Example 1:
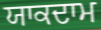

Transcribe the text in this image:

ਯਾਕਦਾਮ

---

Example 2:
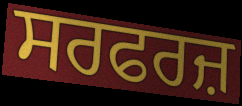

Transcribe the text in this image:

ਸਰਫਰਜ਼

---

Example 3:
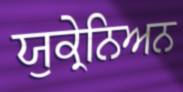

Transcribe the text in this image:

ਯੁਕ੍ਰੇਨਿਅਨ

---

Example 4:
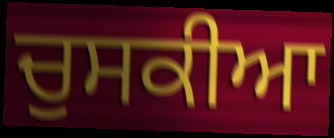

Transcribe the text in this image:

ਚੁਸਕੀਆ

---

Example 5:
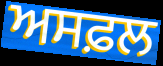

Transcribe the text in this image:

ਅਸਫ਼ਲ